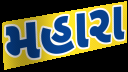
મહારા